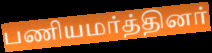
பணியமர்த்தினர்